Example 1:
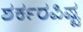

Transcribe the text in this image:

ಶರ್ಕರಪಿಷ್ಟ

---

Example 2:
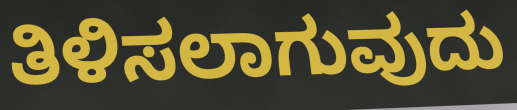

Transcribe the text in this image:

ತಿಳಿಸಲಾಗುವುದು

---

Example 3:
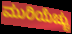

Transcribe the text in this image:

ಮುರಿಯೆಚ್ಚು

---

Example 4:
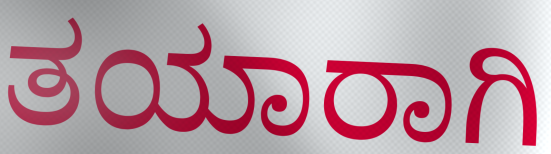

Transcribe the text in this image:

ತಯಾರಾಗಿ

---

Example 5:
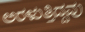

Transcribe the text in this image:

ಅರಳುತ್ತಿದ್ದವು